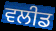
ਵਲੀਡ